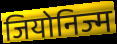
जियोनिज्म